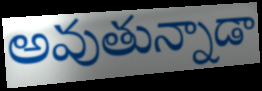
అవుతున్నాడా